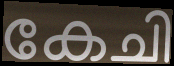
കേചി